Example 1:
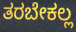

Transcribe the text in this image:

ತರಬೇಕಲ್ಲ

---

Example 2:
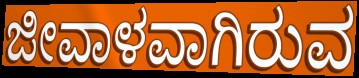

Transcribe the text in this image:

ಜೀವಾಳವಾಗಿರುವ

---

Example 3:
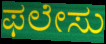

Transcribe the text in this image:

ಫಲೇಸು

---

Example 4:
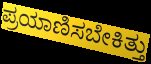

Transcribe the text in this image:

ಪ್ರಯಾಣಿಸಬೇಕಿತ್ತು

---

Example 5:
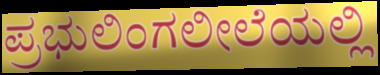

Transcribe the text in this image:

ಪ್ರಭುಲಿಂಗಲೀಲೆಯಲ್ಲಿ